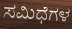
ಸಮಿಧೆಗಳ